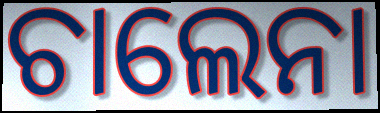
ଚାଲେନା